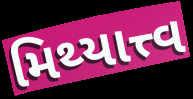
મિથ્યાત્ત્વ